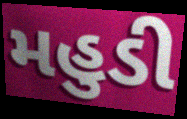
મહુડી